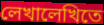
লেখালেখিতে